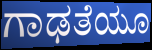
ಗಾಢತೆಯೂ